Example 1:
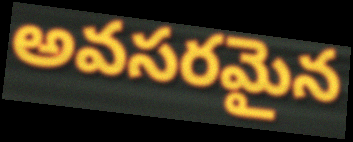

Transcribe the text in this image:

అవసరమైన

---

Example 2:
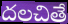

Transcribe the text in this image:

దలచితే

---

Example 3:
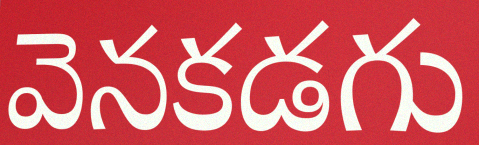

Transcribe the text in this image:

వెనకడగు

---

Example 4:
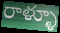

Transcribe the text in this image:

రాళ్ళూ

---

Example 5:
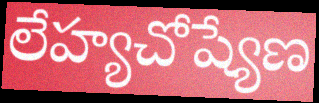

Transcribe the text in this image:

లేహ్యచోష్యేణ